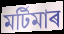
মৰ্টিমাৰ